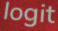
logit